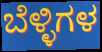
ಬೆಳ್ಳಿಗಳ